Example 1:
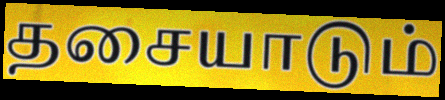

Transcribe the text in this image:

தசையாடும்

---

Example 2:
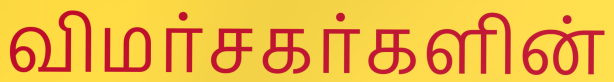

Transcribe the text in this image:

விமர்சகர்களின்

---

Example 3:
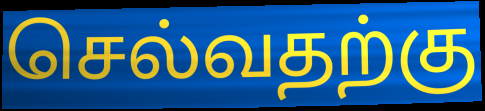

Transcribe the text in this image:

செல்வதற்கு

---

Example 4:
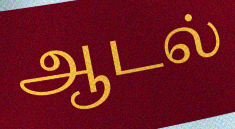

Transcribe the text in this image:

ஆடல்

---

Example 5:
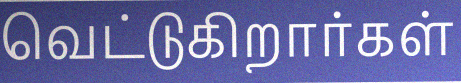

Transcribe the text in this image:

வெட்டுகிறார்கள்